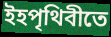
ইহপৃথিবীতে